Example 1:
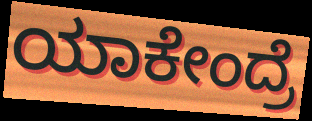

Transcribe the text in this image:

ಯಾಕೇಂದ್ರೆ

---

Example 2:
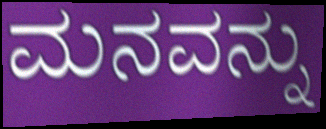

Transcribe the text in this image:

ಮನವನ್ನು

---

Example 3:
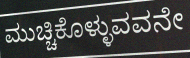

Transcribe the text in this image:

ಮುಚ್ಚಿಕೊಳ್ಳುವವನೇ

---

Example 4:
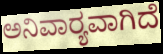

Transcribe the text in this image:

ಅನಿವಾರ‍್ಯವಾಗಿದೆ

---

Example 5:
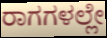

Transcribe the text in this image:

ರಾಗಗಳಲ್ಲೇ